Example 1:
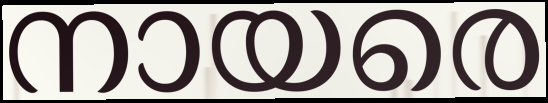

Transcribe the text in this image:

നായരെ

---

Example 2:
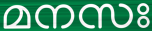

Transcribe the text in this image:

മനസഃ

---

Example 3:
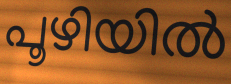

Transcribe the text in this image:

പൂഴിയിൽ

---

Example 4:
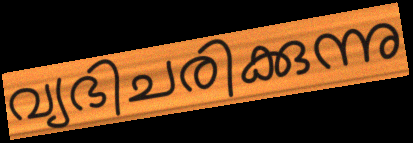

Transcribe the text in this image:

വ്യഭിചരിക്കുന്നു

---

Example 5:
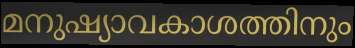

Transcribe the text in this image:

മനുഷ്യാവകാശത്തിനും